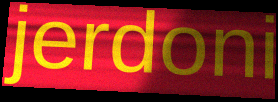
jerdoni